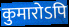
कुमारोऽपि